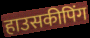
हाउसकीपिंग